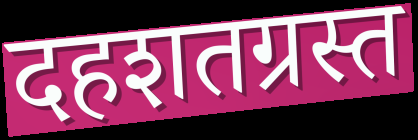
दहशतग्रस्त